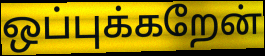
ஒப்புக்கறேன்